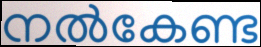
നൽകേണ്ട